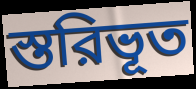
স্তরিভূত